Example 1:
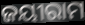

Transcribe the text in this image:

ଜୟୀରାମ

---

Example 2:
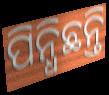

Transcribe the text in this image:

ପିନ୍ଧିଛନ୍ତି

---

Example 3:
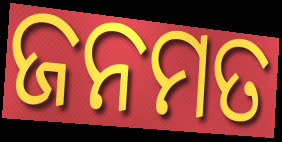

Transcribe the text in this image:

ଜନମତ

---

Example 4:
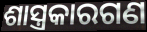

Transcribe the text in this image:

ଶାସ୍ତ୍ରକାରଗଣ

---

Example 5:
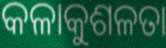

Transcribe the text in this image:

କଳାକୁଶଳତା